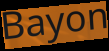
Bayon